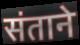
संताने